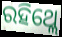
ରହିଥ୍ଲେ